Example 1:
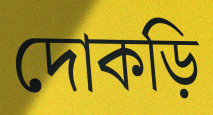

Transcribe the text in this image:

দোকড়ি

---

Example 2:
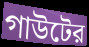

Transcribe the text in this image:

গাউটের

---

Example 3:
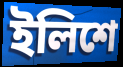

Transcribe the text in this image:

ইলিশে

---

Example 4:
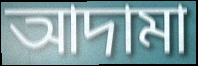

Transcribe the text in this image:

আদামা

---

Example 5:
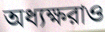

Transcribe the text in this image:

অধ্যক্ষরাও